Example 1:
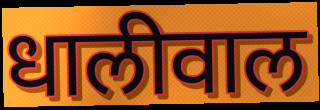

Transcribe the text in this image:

धालीवाल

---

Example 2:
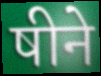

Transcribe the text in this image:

षीने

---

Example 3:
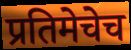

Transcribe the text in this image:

प्रतिमेचेच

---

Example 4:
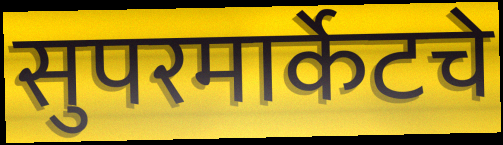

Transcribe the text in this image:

सुपरमार्केटचे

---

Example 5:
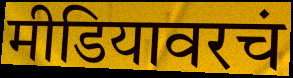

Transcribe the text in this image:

मीडियावरचं